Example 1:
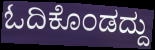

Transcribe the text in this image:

ಓದಿಕೊಂಡದ್ದು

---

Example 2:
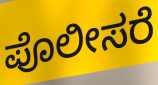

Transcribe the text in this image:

ಪೊಲೀಸರೆ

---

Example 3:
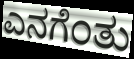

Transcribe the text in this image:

ಎನಗೆಂತು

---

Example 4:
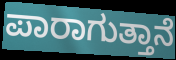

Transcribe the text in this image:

ಪಾರಾಗುತ್ತಾನೆ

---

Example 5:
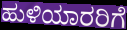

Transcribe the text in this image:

ಹುಳಿಯಾರರಿಗೆ